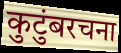
कुटुंबरचना